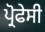
ਪ੍ਰੋਫੇਸੀ